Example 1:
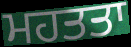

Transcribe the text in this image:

ਮਹਤਤਾ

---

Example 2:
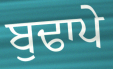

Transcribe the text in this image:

ਬੁਢਾਪੇ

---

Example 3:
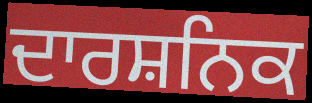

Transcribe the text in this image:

ਦਾਰਸ਼ਨਿਕ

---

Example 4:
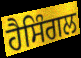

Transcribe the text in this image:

ਹੈਸਿੰਗਲ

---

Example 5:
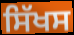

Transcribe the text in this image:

ਸਿੱਖਸ